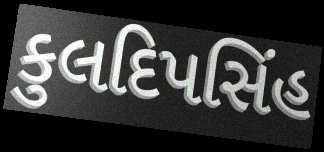
કુલદિપસિંહ